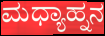
ಮಧ್ಯಾಹ್ನನ